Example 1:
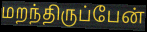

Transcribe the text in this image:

மறந்திருப்பேன்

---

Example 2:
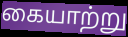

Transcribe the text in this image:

கையாற்று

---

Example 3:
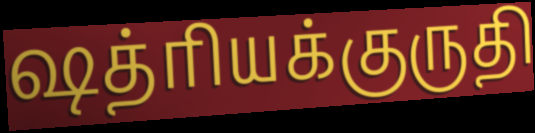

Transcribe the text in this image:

ஷத்ரியக்குருதி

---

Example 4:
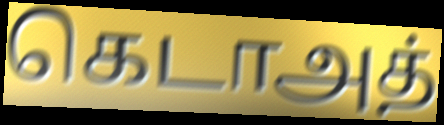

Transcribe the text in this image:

கெடாஅத்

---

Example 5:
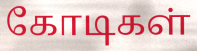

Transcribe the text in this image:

கோடிகள்